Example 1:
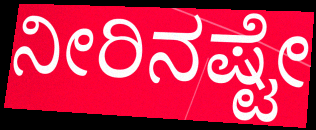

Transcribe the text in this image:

ನೀರಿನಷ್ಟೇ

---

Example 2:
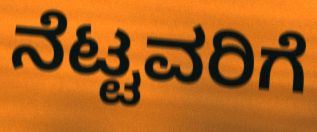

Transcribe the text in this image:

ನೆಟ್ಟವರಿಗೆ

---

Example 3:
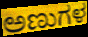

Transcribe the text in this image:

ಅಣುಗಳ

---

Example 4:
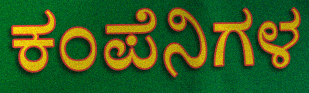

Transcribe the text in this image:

ಕಂಪೆನಿಗಳ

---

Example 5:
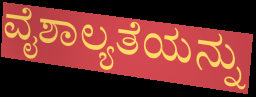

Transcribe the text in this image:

ವೈಶಾಲ್ಯತೆಯನ್ನು